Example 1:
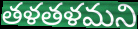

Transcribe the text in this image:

తళతళమని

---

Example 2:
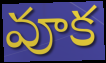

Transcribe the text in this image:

వూక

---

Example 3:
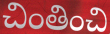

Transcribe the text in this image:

చింతించి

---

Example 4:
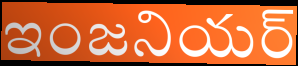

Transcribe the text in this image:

ఇంజనియర్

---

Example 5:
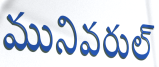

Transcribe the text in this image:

మునివరుల్